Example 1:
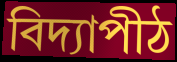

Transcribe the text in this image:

বিদ্যাপীঠ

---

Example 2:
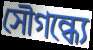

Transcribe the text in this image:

সৌগন্ধ্যে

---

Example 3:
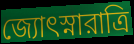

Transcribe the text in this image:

জ্যোৎস্নারাত্রি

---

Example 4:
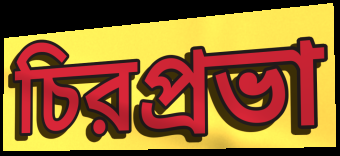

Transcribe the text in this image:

চিরপ্রভা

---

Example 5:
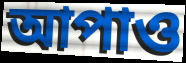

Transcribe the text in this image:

আপাও